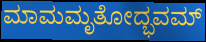
ಮಾಮಮೃತೋದ್ಭವಮ್